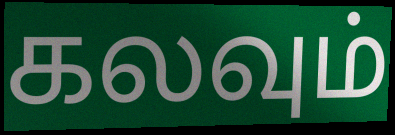
கலவும்